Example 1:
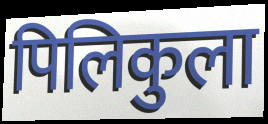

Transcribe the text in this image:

पिलिकुला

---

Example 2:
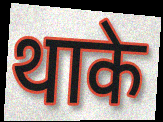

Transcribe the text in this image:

थाके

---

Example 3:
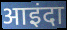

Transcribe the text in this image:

आइंदा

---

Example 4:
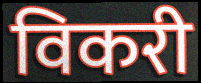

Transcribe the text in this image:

विकरी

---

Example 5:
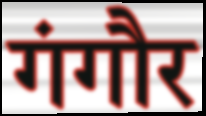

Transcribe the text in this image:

गंगौर